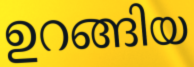
ഉറങ്ങിയ